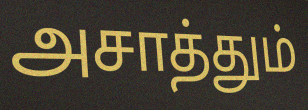
அசாத்தும்